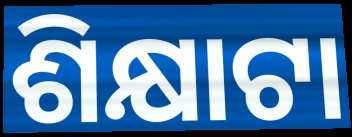
ଶିକ୍ଷାଟା